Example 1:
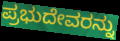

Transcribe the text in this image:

ಪ್ರಭುದೇವರನ್ನು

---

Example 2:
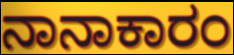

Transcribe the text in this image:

ನಾನಾಕಾರಂ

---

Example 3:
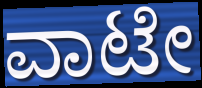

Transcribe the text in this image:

ವಾಟೇ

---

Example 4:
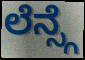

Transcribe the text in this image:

ಲೆನ್ಸ್ಗೆ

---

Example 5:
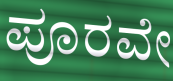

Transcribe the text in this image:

ಪೂರವೇ